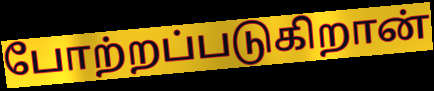
போற்றப்படுகிறான்